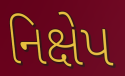
નિક્ષેપ